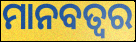
ମାନବତ୍ୱର